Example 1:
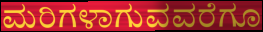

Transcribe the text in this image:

ಮರಿಗಳಾಗುವವರೆಗೂ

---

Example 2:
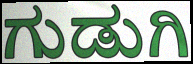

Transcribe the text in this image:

ಗುಡುಗಿ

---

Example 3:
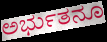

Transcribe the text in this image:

ಅರ್ಭುತನೂ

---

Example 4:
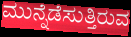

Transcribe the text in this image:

ಮುನ್ನೆಡೆಸುತ್ತಿರುವ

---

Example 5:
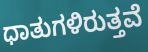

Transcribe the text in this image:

ಧಾತುಗಳಿರುತ್ತವೆ